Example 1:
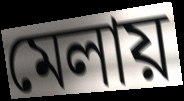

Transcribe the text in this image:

মেলায়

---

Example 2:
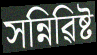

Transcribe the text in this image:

সন্নিৱিষ্ট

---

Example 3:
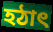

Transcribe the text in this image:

হঠাৎ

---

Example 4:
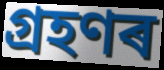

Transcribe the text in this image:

গ্ৰহণৰ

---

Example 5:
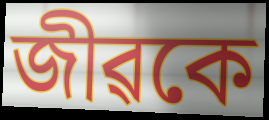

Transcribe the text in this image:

জীৱকে